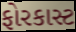
ફોરકાસ્ટ